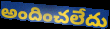
అందించలేదు